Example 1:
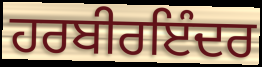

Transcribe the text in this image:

ਹਰਬੀਰਇੰਦਰ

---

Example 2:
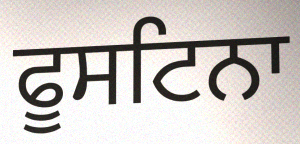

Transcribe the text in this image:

ਫੂਸਟਿਨਾ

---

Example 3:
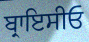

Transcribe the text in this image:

ਬ੍ਰਾਇਸੀਓ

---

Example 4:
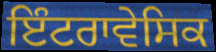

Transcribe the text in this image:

ਇੰਟਰਾਵੇਸਿਕ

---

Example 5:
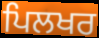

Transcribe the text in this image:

ਪਿਲਖਰ